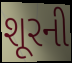
શૂરની